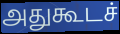
அதுகூடச்